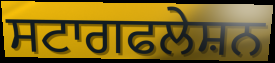
ਸਟਾਗਫਲੇਸ਼ਨ